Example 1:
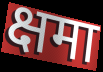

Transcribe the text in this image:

क्षमा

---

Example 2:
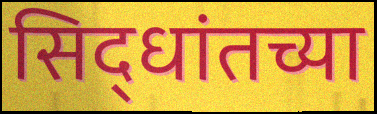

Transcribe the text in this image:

सिद्धांतच्या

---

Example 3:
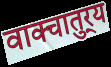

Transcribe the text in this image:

वाक्चातुर्य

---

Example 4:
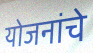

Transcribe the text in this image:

योजनांचे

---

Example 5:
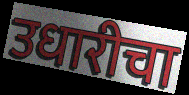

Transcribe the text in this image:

उधारीचा